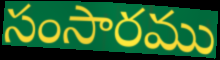
సంసారము